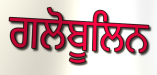
ਗਲੋਬੂਲਿਨ